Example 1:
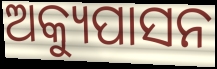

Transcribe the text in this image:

ଅକ୍ୟୁପାସନ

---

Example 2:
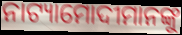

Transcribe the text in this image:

ନାଟ୍ୟାମୋଦୀମାନଙ୍କୁ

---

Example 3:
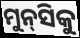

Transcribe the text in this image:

ମୁନ୍‌ସିକୁ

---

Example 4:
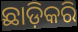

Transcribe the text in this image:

ଛାଡ଼ିକରି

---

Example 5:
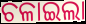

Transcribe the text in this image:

ଚଳାଇଲା